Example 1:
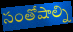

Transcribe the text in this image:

సంతోషాల్ని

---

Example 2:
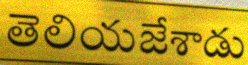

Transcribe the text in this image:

తెలియజేశాడు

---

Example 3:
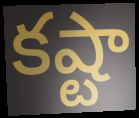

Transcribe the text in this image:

కష్టా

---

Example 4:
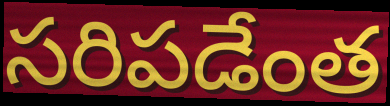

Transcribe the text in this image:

సరిపడేంత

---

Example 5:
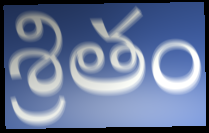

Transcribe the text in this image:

శ్రితం